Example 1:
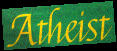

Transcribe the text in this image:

Atheist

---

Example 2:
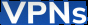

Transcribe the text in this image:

VPNs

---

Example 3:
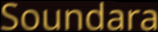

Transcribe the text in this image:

Soundara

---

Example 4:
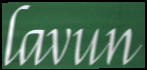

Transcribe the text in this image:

lavun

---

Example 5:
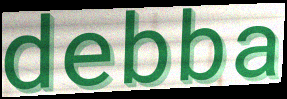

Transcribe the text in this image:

debba